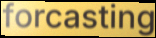
forcasting